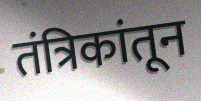
तंत्रिकांतून